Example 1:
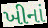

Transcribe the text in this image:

ખીનાં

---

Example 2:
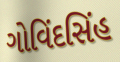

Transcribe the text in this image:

ગોવિંદસિંહ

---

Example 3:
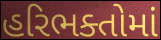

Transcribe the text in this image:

હરિભક્તોમાં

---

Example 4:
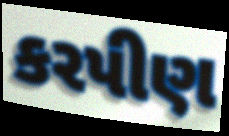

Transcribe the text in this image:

કરપીણ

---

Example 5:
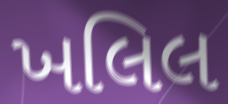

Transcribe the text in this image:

ખલિલ